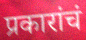
प्रकारांचं